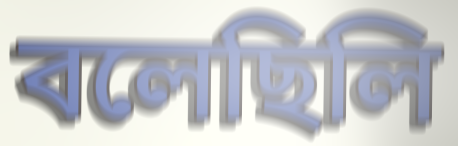
বলেছিলি